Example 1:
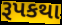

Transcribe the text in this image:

રૂપકથા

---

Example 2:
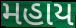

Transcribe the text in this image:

મહાય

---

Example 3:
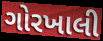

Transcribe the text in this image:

ગોરખાલી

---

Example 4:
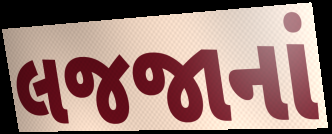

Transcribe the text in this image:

લજજાનાં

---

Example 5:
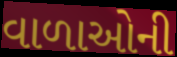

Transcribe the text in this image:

વાળાઓની